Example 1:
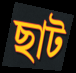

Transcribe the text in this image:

ছাট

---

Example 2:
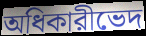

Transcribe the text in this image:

অধিকারীভেদ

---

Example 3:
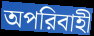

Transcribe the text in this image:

অপরিবাহী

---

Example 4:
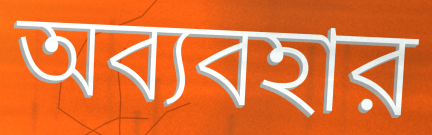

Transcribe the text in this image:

অব্যবহার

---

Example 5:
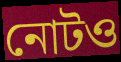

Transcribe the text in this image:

নোটও